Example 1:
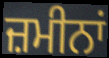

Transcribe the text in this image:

ਜ਼ਮੀਨਾਂ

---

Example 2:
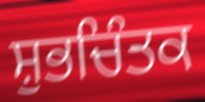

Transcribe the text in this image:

ਸ਼ੁਭਚਿੰਤਕ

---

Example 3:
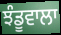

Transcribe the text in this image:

ਝੰਡੂਵਾਲਾ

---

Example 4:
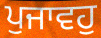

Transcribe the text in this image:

ਪੁਜਾਵਹੁ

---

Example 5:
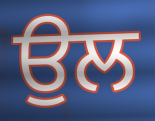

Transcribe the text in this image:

ਉਲ